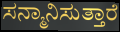
ಸನ್ಮಾನಿಸುತ್ತಾರೆ